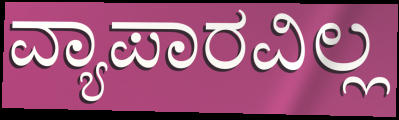
ವ್ಯಾಪಾರವಿಲ್ಲ